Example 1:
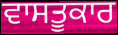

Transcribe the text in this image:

ਵਾਸਤੂਕਾਰ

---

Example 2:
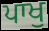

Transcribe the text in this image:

ਪਾਖੁ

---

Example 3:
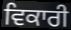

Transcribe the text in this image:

ਵਿਕਾਰੀ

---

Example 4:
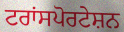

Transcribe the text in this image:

ਟਰਾਂਸਪੋਰਟੇਸ਼ਨ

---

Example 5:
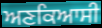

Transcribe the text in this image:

ਅਣਕਿਆਸੀ